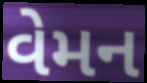
વેમન